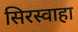
सिरस्वाहा